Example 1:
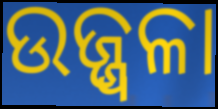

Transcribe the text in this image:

ଉଜ୍ଜ୍ୱଳା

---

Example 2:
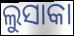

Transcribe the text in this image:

ଲୁସାକା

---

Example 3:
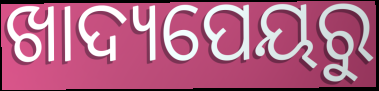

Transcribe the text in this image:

ଖାଦ୍ୟପେୟରୁ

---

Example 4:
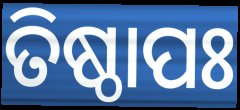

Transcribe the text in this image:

ତିଷ୍ଠାପଃ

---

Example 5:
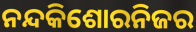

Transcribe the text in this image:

ନନ୍ଦକିଶୋରନିଜର